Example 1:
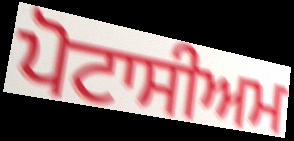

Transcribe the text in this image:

ਪੋਟਾਸੀਅਮ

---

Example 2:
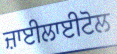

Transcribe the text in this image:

ਜ਼ਾਈਲਾਈਟੋਲ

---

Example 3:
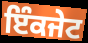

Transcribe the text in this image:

ਇੰਕਜੇਟ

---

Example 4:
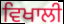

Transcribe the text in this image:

ਵਿਖਾਲੀ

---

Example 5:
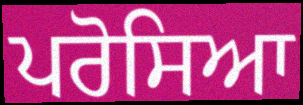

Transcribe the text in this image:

ਪਰੋਸਿਆ